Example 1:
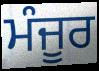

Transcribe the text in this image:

ਮੰਜੂਰ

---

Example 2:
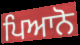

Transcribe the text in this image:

ਪਿਆਨੋ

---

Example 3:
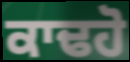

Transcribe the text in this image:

ਕਾਢਹੋ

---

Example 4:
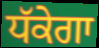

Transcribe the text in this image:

ਧੱਕੇਗਾ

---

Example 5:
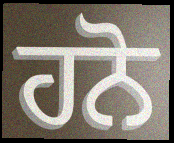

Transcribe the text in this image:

ਹਨੋ